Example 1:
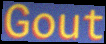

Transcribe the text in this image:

Gout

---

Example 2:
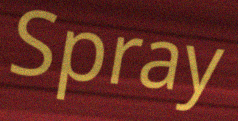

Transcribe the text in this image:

Spray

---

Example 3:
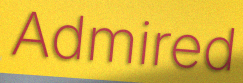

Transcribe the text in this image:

Admired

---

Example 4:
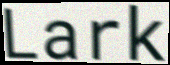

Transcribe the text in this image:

Lark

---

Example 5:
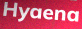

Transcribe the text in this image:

Hyaena